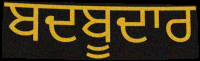
ਬਦਬੂਦਾਰ